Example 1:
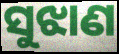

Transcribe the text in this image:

ସୁଝାଣ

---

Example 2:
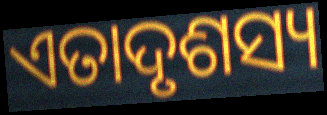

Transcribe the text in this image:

ଏତାଦୃଶସ୍ୟ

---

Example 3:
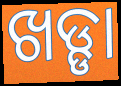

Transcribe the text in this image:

ଖଡ୍ଡା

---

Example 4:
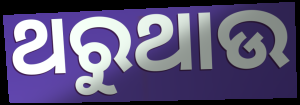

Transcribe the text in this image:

ଥରୁଥାଉ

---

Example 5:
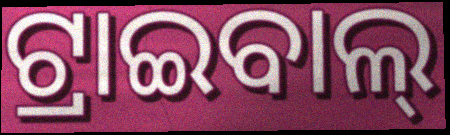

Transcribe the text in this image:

ଟ୍ରାଇବାଲ୍